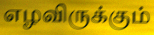
எழவிருக்கும்